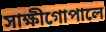
সাক্ষীগোপালে